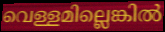
വെള്ളമില്ലെങ്കിൽ